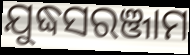
ଯୁଦ୍ଧସରଞ୍ଜାମ